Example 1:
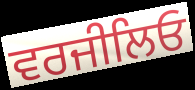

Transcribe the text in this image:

ਵਰਜੀਲਿਓ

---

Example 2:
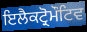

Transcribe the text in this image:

ਇਲੈਕਟ੍ਰੋਮੌਟਿਵ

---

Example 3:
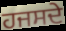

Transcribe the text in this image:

ਹਜਸਦੇ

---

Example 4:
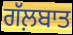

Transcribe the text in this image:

ਗੱਲ਼ਬਾਤ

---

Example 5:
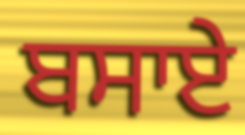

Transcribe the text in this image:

ਬਸਾਏ